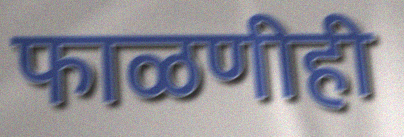
फाळणीही